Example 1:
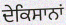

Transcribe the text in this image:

ਦੇਕਿਸਾਨਾਂ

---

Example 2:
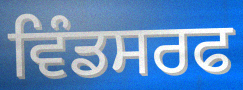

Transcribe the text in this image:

ਵਿੰਡਸਰਫ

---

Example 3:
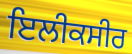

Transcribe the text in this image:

ਇਲੀਕਸੀਰ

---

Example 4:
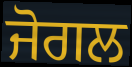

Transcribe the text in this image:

ਜੋਗਲ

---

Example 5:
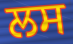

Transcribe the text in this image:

ਲਸ